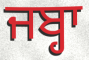
ਜਬ੍ਹਾ